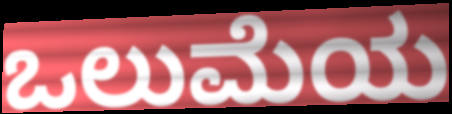
ಒಲುಮೆಯ